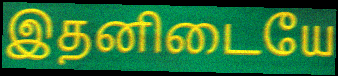
இதனிடையே